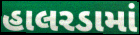
હાલરડામાં